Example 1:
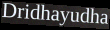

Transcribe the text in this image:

Dridhayudha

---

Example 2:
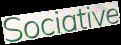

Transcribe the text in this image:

Sociative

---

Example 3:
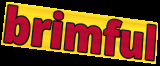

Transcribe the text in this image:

brimful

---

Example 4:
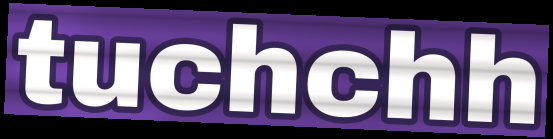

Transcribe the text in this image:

tuchchh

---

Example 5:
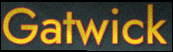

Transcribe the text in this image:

Gatwick